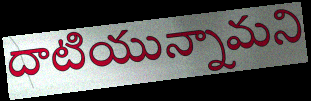
దాటియున్నామని